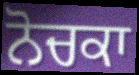
ਨੋਚਕਾ